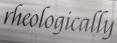
rheologically